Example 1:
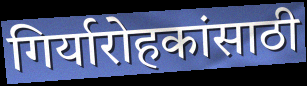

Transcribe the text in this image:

गिर्यारोहकांसाठी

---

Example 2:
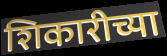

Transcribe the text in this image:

शिकारीच्या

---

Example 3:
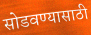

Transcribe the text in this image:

सोडवण्यासाठी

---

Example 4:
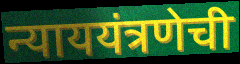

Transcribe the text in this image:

न्याययंत्रणेची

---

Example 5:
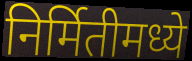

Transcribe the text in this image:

निर्मितीमध्ये